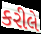
કરીલે